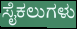
ಸೈಕಲುಗಳು